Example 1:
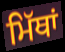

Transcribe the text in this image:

ਮਿੱਥਾਂ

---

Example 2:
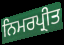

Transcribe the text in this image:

ਨਿਮਰਪ੍ਰੀਤ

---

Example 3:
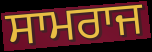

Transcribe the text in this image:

ਸਾਮਰਾਜ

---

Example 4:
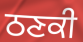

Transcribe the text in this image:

ਠਣਕੀ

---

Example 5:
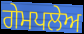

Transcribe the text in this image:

ਗੇਮਪਲੇਅ